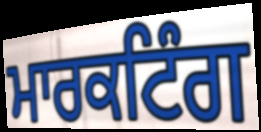
ਮਾਰਕਟਿੰਗ